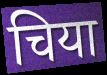
चिया